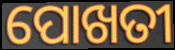
ପୋଖତୀ